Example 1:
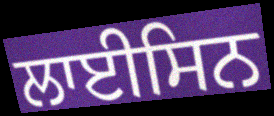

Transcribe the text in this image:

ਲਾਈਸਿਨ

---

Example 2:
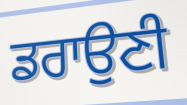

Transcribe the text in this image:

ਡਰਾਉਣੀ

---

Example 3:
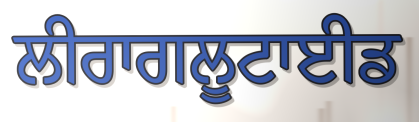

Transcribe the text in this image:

ਲੀਰਾਗਲੂਟਾਈਡ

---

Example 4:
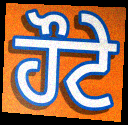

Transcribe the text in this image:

ਹੌਟੇ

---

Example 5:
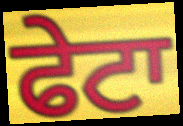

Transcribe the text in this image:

ਫੇਟਾ